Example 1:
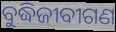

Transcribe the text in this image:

ବୁଦ୍ଧିଜୀବୀଗଣ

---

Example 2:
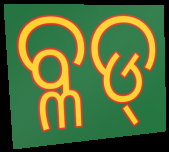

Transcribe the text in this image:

ବ୍ଳଡ୍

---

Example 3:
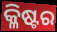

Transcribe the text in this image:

କ୍ଳିଷ୍ଟର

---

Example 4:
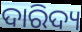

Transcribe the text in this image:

ଦାରିଦ୍ୟ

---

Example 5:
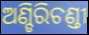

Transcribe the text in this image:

ଅଣ୍ଡିରିଚଣ୍ଡୀ